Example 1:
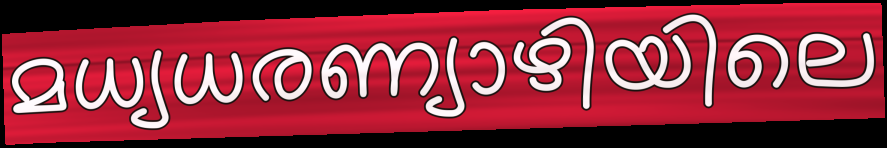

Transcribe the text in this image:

മധ്യധരണ്യാഴിയിലെ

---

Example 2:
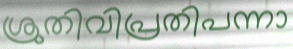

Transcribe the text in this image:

ശ്രുതിവിപ്രതിപന്നാ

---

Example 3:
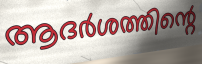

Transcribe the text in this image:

ആദർശത്തിന്റെ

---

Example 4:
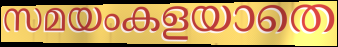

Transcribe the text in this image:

സമയംകളയാതെ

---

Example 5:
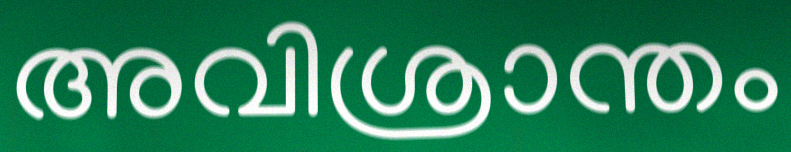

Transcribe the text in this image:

അവിശ്രാന്തം